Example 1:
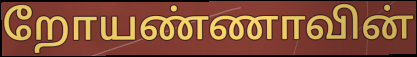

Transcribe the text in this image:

றோயண்ணாவின்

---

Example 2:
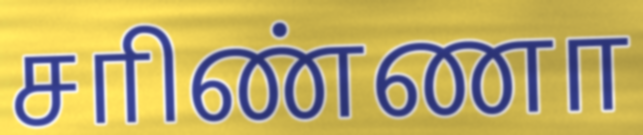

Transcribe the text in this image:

சரிண்ணா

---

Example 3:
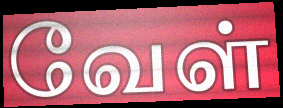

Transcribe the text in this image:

வேள்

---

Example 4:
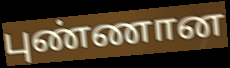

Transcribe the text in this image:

புண்ணான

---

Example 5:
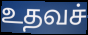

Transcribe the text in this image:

உதவச்